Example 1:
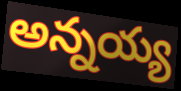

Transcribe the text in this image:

అన్నయ్య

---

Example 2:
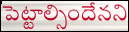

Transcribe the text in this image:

పెట్టాల్సిందేనని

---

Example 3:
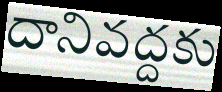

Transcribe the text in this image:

దానివద్దకు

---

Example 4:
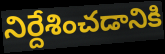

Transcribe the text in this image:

నిర్దేశించడానికి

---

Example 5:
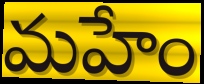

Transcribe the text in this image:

మహేం